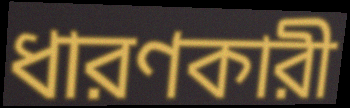
ধারণকারী